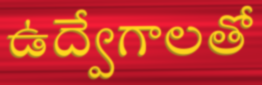
ఉద్వేగాలతో